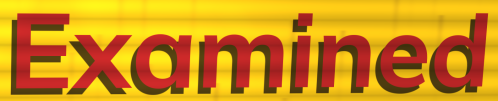
Examined